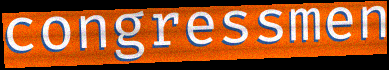
congressmen